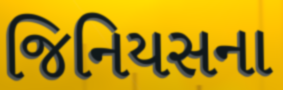
જિનિયસના